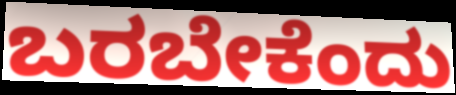
ಬರಬೇಕೆಂದು